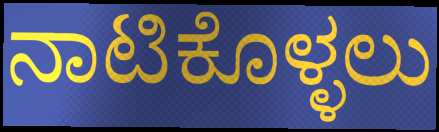
ನಾಟಿಕೊಳ್ಳಲು